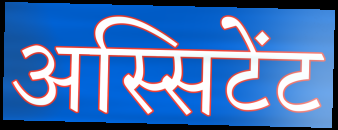
अस्सिटेंट